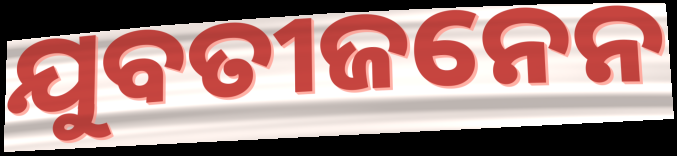
ଯୁବତୀଜନେନ